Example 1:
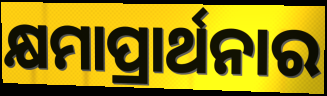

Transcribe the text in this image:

କ୍ଷମାପ୍ରାର୍ଥନାର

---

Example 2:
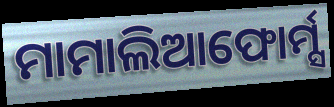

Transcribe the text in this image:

ମାମାଲିଆଫୋର୍ମ୍ସ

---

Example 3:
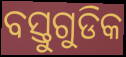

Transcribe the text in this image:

ବସ୍ତୁଗୁଡିକ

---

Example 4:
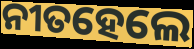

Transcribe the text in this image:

ନୀତହେଲେ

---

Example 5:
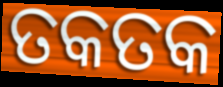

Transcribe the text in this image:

ତକତକ